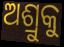
ଅଶ୍ରୁକୁ